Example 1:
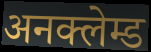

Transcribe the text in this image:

अनक्लेम्ड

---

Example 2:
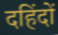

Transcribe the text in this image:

दहिंदों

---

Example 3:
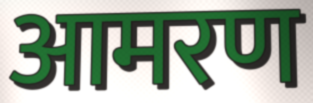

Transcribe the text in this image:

आमरण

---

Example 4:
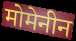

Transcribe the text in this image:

मोमेनीन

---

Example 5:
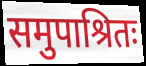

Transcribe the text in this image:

समुपाश्रितः